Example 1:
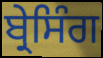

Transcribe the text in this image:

ਬ੍ਰੇਸਿੰਗ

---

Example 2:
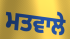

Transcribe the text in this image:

ਮਤਵਾਲੇ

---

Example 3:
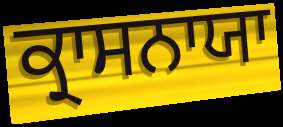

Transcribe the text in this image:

ਕ੍ਰਾਸਨਾਯਾ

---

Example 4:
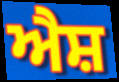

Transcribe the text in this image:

ਐਸ਼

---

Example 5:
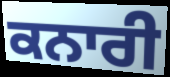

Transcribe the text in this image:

ਕਨਾਰੀ